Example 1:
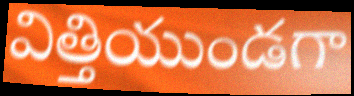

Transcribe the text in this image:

విత్తియుండగా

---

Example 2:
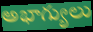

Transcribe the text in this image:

అభాగ్యులు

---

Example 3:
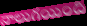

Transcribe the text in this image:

నాలుగయింది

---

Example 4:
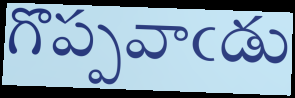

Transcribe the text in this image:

గొప్పవాఁడు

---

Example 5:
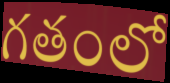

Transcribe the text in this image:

గతంలో